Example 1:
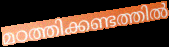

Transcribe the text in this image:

മഠത്തിക്കണ്ടത്തിൽ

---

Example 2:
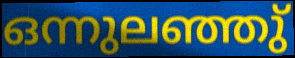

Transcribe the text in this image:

ഒന്നുലഞ്ഞു്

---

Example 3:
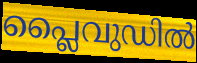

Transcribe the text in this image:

പ്ലൈവുഡിൽ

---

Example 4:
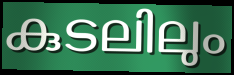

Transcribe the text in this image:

കുടലിലും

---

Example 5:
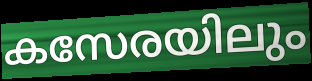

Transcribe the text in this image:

കസേരയിലും